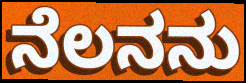
ನೆಲನನು